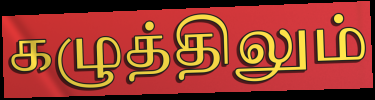
கழுத்திலும்